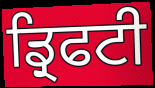
ਡ੍ਰਿਫਟੀ